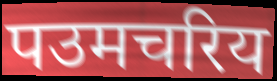
पउमचरिय